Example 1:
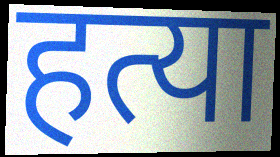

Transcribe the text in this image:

हत्या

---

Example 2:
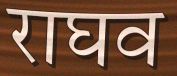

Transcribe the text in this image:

राघव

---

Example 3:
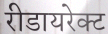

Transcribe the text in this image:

रीडायरेक्ट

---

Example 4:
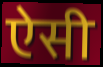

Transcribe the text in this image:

ऐसी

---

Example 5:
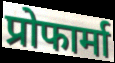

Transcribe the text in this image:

प्रोफार्मा